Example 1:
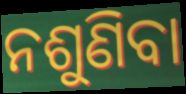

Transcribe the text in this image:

ନଶୁଣିବା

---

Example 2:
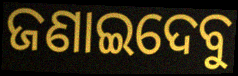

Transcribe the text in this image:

ଜଣାଇଦେବୁ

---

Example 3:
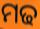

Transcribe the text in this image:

ମଢ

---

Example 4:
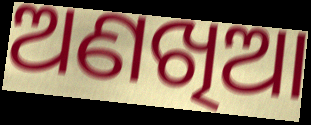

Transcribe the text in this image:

ଅଣଖିଆ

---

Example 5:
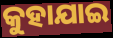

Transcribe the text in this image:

କୁହାଯାଇ